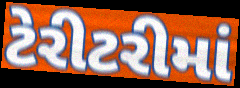
ટેરીટરીમાં